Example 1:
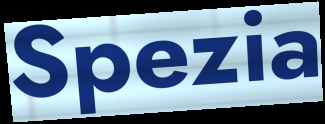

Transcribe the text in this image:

Spezia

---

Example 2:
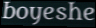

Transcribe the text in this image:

boyeshe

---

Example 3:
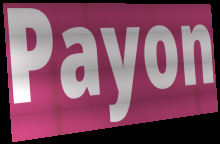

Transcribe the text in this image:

Payon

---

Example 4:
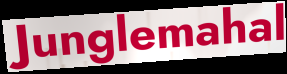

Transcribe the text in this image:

Junglemahal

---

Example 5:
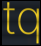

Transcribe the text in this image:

tq